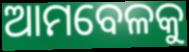
ଆମବେଳକୁ